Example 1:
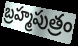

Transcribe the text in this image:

బ్రహ్మపుత్రం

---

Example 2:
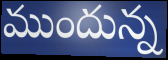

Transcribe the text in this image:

ముందున్న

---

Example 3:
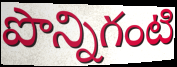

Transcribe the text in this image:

పొన్నిగంటి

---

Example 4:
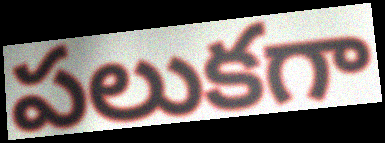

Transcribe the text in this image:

పలుకగా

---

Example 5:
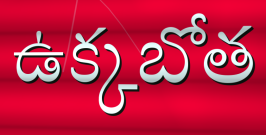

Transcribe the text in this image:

ఉక్కబోత